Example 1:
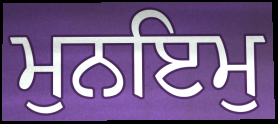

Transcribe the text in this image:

ਮੁਨਇਮੁ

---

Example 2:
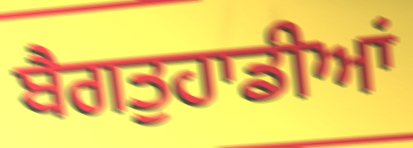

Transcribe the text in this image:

ਬੈਗਤੁਹਾਡੀਆਂ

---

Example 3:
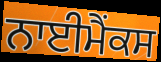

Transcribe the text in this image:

ਨਾਈਮੈਂਕਸ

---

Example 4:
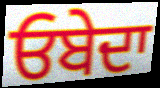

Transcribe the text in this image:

ਓਬੇਦਾ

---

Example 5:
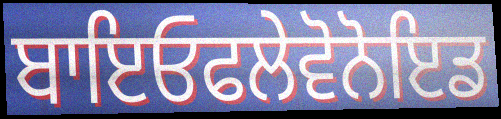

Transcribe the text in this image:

ਬਾਇਓਫਲੇਵੋਨੋਇਡ